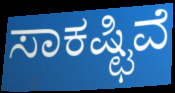
ಸಾಕಷ್ಟಿವೆ